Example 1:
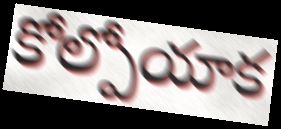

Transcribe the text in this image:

కోల్పోయాక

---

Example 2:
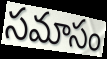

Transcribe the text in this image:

సమాసం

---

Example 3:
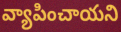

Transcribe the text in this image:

వ్యాపించాయని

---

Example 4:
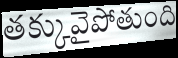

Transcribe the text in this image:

తక్కువైపోతుంది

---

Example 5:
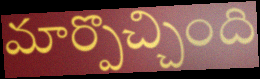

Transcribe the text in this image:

మార్పొచ్చింది